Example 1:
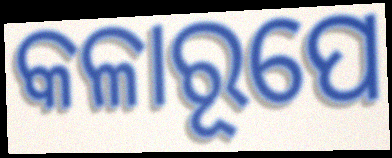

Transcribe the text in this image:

କଳାରୂପେ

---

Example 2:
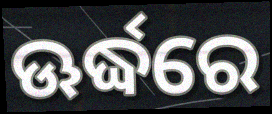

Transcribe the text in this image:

ଊର୍ଦ୍ଧରେ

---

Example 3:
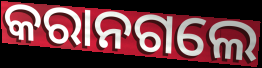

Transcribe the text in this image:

କରାନଗଲେ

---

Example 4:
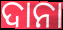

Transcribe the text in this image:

ଦାନା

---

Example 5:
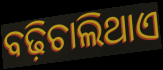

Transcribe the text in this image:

ବଢ଼ିଚାଲିଥାଏ